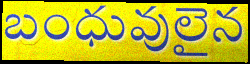
బంధువులైన